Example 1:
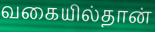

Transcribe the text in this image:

வகையில்தான்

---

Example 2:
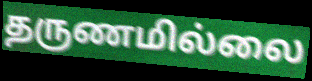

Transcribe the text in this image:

தருணமில்லை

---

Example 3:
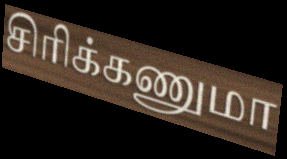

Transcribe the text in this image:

சிரிக்கணுமா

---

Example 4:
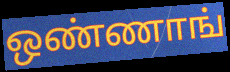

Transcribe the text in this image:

ஒண்ணாங்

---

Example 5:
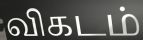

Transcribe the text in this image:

விகடம்